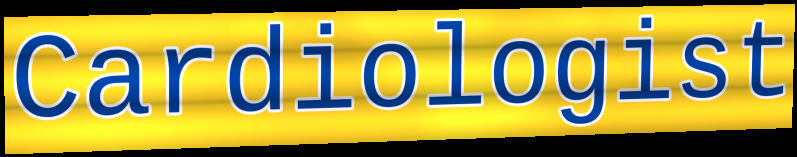
Cardiologist